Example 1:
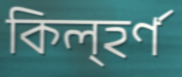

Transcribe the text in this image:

কিল্‌হর্ণ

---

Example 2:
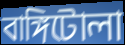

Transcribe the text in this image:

বাঙ্গিটোলা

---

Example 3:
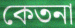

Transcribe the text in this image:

কেতনা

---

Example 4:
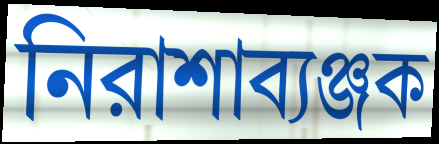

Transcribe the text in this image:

নিরাশাব্যঞ্জক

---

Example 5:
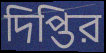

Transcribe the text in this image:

দিপ্তির